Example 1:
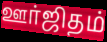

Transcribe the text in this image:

ஊர்ஜிதம்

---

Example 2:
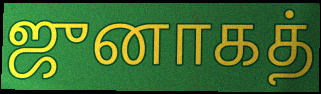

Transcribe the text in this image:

ஜுனாகத்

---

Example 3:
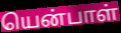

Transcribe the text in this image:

யென்பாள்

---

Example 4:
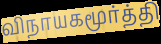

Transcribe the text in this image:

விநாயகமூர்த்தி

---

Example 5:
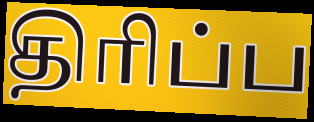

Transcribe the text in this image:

திரிப்ப